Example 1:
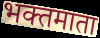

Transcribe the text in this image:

भक्तमाता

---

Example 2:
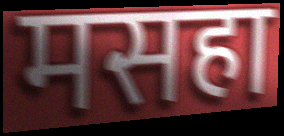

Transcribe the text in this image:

मसहा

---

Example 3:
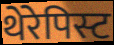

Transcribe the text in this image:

थेरेपिस्‍ट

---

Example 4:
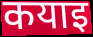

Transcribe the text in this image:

कयाइ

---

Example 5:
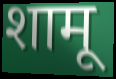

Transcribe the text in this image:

शामू